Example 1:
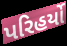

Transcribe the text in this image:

પરિહર્યો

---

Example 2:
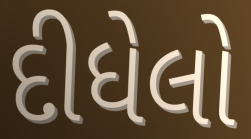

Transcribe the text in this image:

દીધેલો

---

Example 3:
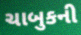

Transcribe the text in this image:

ચાબુકની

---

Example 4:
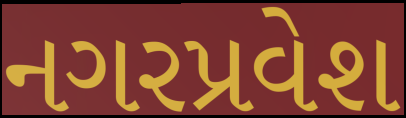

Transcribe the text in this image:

નગરપ્રવેશ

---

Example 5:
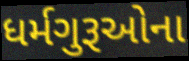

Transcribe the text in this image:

ધર્મગુરૂઓના